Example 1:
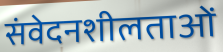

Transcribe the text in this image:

संवेदनशीलताओं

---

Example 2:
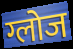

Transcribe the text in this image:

ग्लोज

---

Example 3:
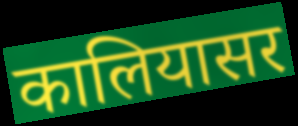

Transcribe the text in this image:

कालियासर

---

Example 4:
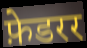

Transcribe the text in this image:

फ़ेडरर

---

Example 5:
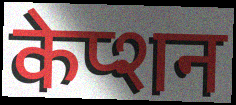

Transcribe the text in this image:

केप्शन